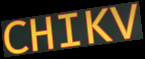
CHIKV